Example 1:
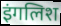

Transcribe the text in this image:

इंगलिश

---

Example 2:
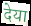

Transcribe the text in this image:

देया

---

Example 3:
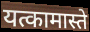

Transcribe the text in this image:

यत्कामास्ते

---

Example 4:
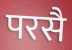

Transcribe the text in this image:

परसै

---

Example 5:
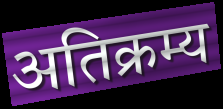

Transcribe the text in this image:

अतिक्रम्य